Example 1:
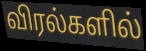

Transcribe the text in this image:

விரல்களில்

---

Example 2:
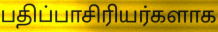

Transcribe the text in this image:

பதிப்பாசிரியர்களாக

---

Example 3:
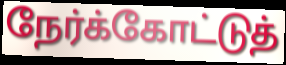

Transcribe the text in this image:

நேர்க்கோட்டுத்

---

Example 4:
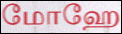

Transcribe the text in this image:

மோஹே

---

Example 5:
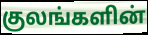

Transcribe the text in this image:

குலங்களின்